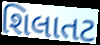
શિલાતટ